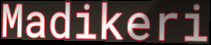
Madikeri